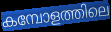
കമ്പോളത്തിലെ